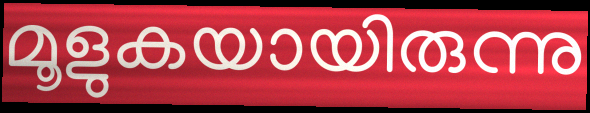
മൂളുകയായിരുന്നു